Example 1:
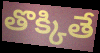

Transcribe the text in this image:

తొక్కితే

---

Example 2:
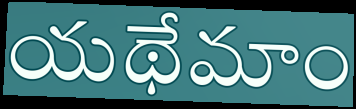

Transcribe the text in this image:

యథేమాం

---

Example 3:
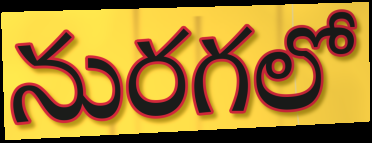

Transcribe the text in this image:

నురగలో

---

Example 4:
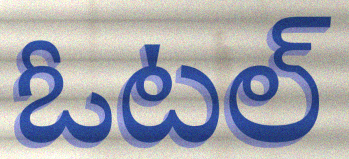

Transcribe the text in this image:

ఓటల్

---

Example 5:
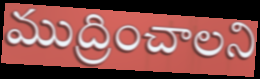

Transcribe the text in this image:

ముద్రించాలని